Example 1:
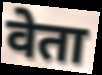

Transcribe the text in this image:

वेता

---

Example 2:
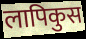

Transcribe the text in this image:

लापिकुस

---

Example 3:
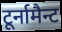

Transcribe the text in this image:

टूर्नामैन्ट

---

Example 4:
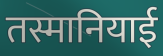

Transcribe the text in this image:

तस्मानियाई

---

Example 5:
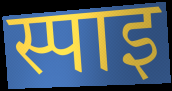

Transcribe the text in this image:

स्पाइ